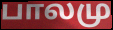
பாலமு